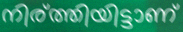
നിര്ത്തിയിട്ടാണ്